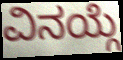
ವಿನಯ್ಗೆ